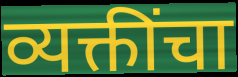
व्यक्तींचा